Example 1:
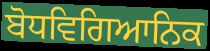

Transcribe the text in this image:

ਬੋਧਵਿਗਿਆਨਿਕ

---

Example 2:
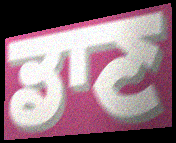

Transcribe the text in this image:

ਡਾਣ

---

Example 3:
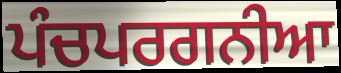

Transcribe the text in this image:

ਪੰਚਪਰਗਨੀਆ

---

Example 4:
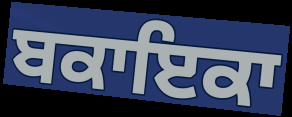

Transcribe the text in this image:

ਬਕਾਇਕਾ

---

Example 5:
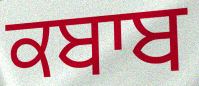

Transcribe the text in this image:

ਕਬਾਬ